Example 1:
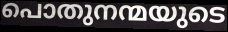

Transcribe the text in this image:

പൊതുനന്മയുടെ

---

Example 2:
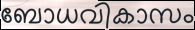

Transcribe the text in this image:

ബോധവികാസം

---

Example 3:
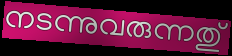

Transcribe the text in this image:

നടന്നുവരുന്നതു്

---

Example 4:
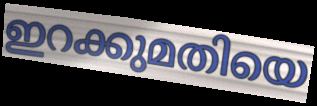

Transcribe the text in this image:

ഇറക്കുമതിയെ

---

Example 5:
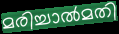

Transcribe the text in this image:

മരിച്ചാൽമതി